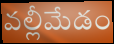
వల్లీమేడం